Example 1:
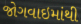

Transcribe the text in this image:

જોગવાઇમાંથી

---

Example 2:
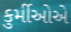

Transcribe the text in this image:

કુર્મીઓએ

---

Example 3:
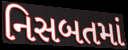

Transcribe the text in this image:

નિસબતમાં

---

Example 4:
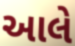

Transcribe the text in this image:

આલે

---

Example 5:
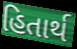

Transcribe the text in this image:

હિતાર્થ